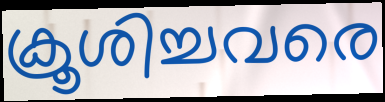
ക്രൂശിച്ചവരെ